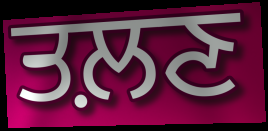
ਤਲ਼ਣ